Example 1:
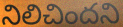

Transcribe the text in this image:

నిలిచిందని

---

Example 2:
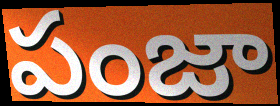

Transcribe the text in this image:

పంజా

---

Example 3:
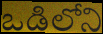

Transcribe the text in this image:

ఒడిలోని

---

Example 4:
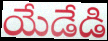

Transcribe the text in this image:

యేడేడి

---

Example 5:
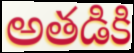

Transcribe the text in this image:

అతడికి